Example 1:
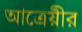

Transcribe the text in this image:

আত্রেয়ীর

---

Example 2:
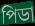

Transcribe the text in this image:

পিডা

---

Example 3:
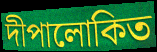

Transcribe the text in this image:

দীপালোকিত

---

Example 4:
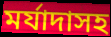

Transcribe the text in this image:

মর্যাদাসহ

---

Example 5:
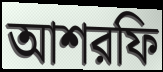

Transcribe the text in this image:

আশরফি